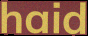
haid